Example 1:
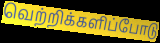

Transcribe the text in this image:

வெற்றிக்களிப்போடு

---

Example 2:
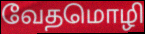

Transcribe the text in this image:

வேதமொழி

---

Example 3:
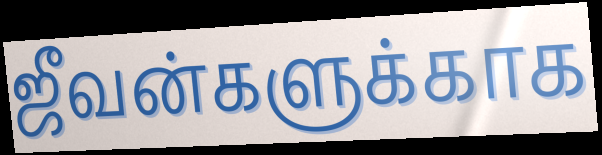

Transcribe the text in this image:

ஜீவன்களுக்காக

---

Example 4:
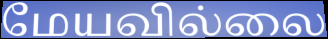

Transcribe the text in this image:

மேயவில்லை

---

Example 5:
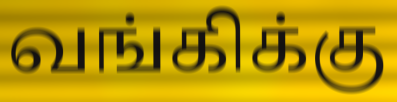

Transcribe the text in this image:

வங்கிக்கு